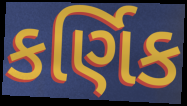
કર્ણિક